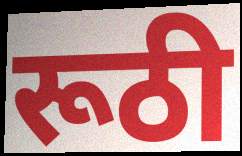
रूठी